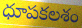
ధూపకలశం